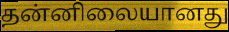
தன்னிலையானது